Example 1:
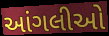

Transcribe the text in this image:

આંગલીઓ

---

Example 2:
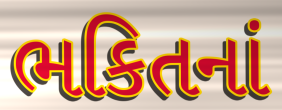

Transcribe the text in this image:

ભકિતનાં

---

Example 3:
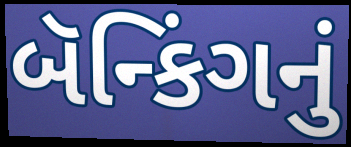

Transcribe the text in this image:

બૅન્કિંગનું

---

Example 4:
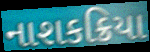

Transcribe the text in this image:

નાશકક્રિયા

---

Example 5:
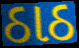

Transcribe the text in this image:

ઠાઠ